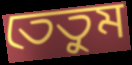
তেতুম